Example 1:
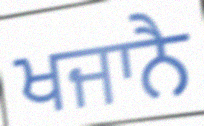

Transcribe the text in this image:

ਖਜਾਨੈ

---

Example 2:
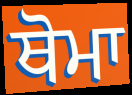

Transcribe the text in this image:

ਥੋਮਾ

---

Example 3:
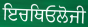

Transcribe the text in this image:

ਇਚਥਿਓਲੋਜੀ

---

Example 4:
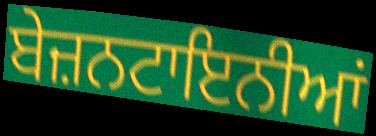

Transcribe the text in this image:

ਬੇਜ਼ਨਟਾਇਨੀਆਂ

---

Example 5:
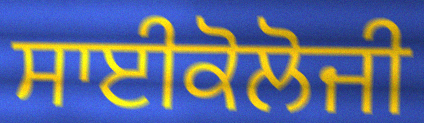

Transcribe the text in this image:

ਸਾਈਕੋਲੋਜੀ